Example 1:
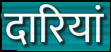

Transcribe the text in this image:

दारियां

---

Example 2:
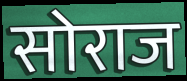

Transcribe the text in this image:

सोराज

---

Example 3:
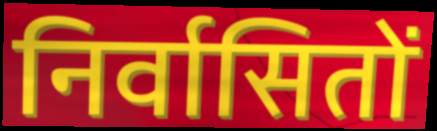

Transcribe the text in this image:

निर्वासितों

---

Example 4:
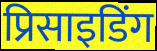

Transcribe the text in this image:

प्रिसाइडिंग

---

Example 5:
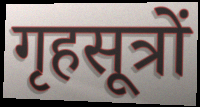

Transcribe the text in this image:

गृहसूत्रों